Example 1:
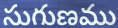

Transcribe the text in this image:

సుగుణము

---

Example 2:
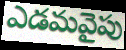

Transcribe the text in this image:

ఎడమవైపు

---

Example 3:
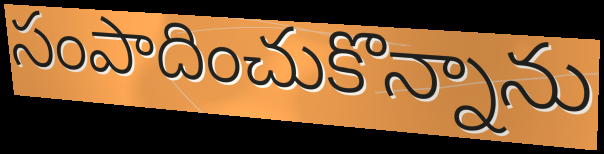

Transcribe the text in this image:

సంపాదించుకొన్నాను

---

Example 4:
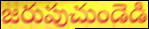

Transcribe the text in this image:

జరుపుచుండెడి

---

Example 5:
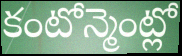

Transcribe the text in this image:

కంటోన్మెంట్లో